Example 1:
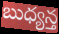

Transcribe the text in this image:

బుధ్యన్త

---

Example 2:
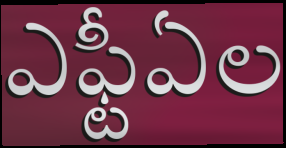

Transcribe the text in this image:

ఎఫ్టీఏల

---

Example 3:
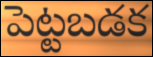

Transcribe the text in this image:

పెట్టబడక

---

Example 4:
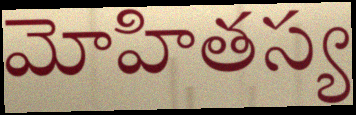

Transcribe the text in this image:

మోహితస్య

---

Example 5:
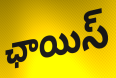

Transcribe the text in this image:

ఛాయిస్